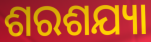
ଶରଶଯ୍ୟା